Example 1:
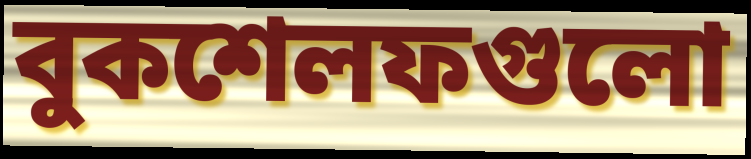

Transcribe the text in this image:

বুকশেলফগুলো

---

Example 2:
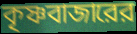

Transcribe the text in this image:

কৃষ্ণবাজারের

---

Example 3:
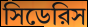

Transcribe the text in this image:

সিডেরিস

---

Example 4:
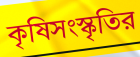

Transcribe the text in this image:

কৃষিসংস্কৃতির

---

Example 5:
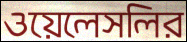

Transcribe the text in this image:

ওয়েলেসলির